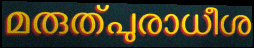
മരുത്പുരാധീശ